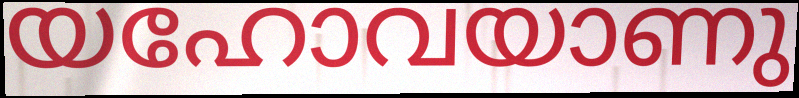
യഹോവയാണു